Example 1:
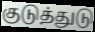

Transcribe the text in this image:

குடுத்துடு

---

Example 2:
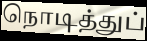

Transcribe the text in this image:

நொடித்துப்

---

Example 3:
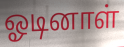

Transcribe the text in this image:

ஓடினாள்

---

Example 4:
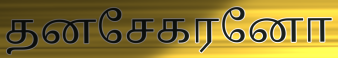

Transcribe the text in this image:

தனசேகரனோ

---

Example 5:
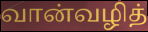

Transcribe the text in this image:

வான்வழித்